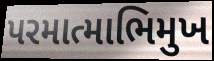
પરમાત્માભિમુખ